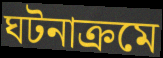
ঘটনাক্রমে